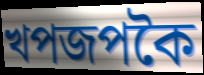
খপজপকৈ